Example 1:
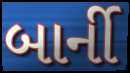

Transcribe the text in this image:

બાર્ની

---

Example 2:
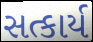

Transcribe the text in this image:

સત્કાર્ય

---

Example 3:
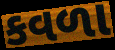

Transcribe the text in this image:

કવળા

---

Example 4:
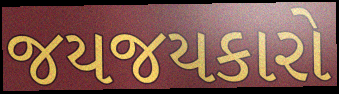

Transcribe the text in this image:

જયજયકારો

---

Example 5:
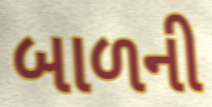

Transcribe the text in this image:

બાળની